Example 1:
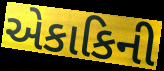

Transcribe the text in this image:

એકાકિની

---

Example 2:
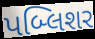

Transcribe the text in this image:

પબ્લિશર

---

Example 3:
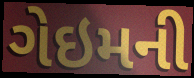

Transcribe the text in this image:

ગેઇમની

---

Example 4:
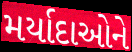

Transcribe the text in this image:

મર્યાદાઓને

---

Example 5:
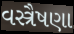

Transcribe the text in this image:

વસ્ત્રૈષણા